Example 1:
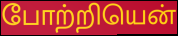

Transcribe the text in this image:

போற்றியென்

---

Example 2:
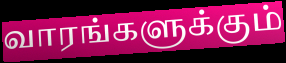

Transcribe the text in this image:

வாரங்களுக்கும்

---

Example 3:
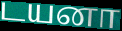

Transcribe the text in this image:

டயனா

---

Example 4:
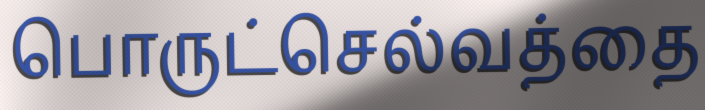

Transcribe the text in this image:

பொருட்செல்வத்தை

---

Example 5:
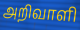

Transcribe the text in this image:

அறிவாளி